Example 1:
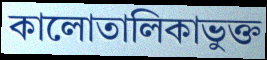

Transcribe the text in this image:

কালোতালিকাভুক্ত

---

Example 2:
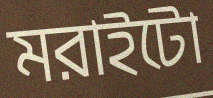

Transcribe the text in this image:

মরাইটো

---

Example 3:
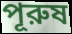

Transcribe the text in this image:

পূরুষ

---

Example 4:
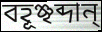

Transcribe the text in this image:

বহূঞ্ছব্দান্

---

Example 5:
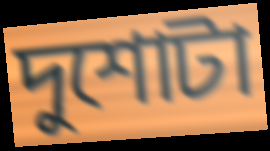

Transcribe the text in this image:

দুশোটা